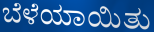
ಬೆಳೆಯಾಯಿತು